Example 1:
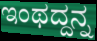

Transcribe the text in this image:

ಇಂಥದ್ದನ್ನ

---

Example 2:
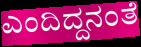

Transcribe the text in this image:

ಎಂದಿದ್ದನಂತೆ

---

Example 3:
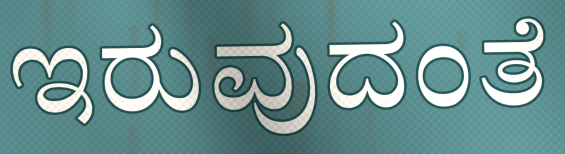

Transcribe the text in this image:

ಇರುವುದಂತೆ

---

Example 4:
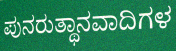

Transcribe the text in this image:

ಪುನರುತ್ಥಾನವಾದಿಗಳ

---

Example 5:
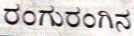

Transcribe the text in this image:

ರಂಗುರಂಗಿನ